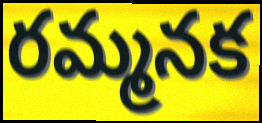
రమ్మనక